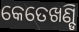
କେତେଖଣ୍ଡି